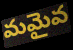
మమైవ